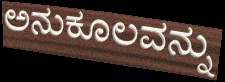
ಅನುಕೂಲವನ್ನು